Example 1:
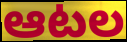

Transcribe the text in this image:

ఆటల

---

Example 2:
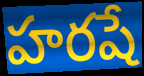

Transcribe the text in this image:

హరషే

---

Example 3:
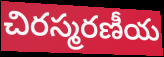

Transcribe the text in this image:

చిరస్మరణీయ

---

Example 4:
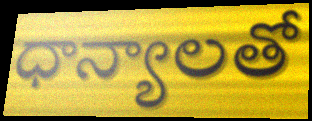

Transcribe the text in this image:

ధాన్యాలతో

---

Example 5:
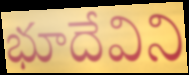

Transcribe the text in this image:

భూదేవిని